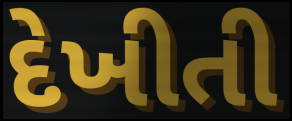
દેખીતી